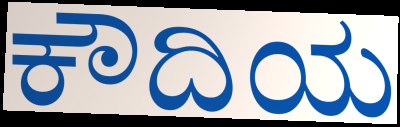
ಕೌದಿಯ